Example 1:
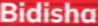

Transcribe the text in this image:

Bidisha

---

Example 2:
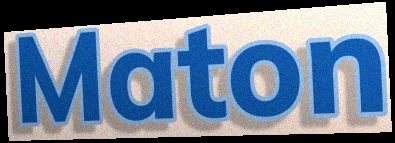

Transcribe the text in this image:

Maton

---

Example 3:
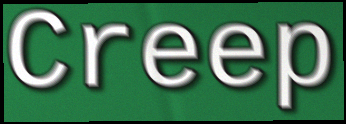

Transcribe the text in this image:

Creep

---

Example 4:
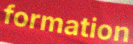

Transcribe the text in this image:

formation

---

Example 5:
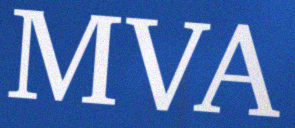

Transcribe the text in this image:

MVA